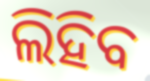
ଲିହିବ